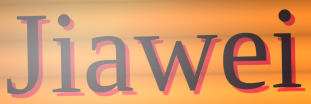
Jiawei